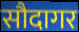
सौदागर